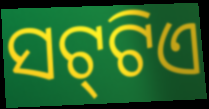
ସଟ୍‍ଟିଏ